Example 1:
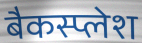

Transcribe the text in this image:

बैकस्प्लेश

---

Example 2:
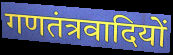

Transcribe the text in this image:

गणतंत्रवादियों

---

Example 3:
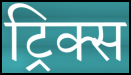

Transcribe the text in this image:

ट्रिक्स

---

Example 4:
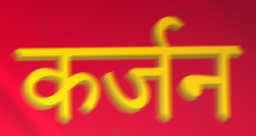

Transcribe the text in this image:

कर्जन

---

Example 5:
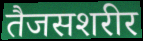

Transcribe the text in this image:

तैजसशरीर